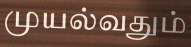
முயல்வதும்